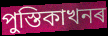
পুস্তিকাখনৰ